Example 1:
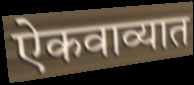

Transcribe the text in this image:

ऐकवाव्यात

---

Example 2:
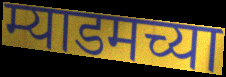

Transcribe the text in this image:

म्याडमच्या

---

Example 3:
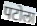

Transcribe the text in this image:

पटोला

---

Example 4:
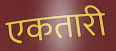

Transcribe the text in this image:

एकतारी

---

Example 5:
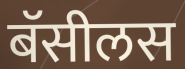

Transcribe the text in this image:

बॅसीलस